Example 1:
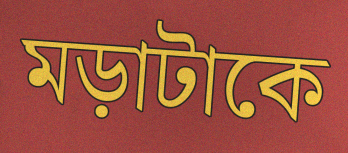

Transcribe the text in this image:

মড়াটাকে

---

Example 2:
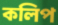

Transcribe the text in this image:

কলিপ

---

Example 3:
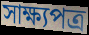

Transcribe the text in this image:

সাক্ষ্যপত্র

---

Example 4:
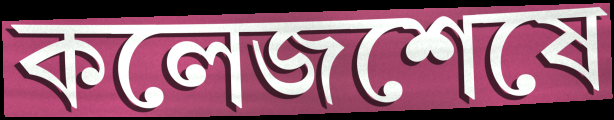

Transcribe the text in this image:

কলেজশেষে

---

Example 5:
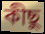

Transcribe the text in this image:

কীছু